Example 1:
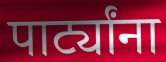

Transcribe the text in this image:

पार्ट्यांना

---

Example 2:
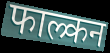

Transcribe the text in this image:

फाल्कन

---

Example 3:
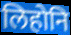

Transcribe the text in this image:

लिहोनि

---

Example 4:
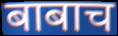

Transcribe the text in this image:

बाबाच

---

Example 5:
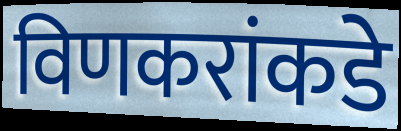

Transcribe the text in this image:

विणकरांकडे